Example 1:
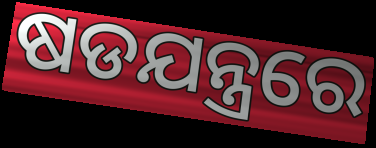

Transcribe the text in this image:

ଷଡଯନ୍ତ୍ରରେ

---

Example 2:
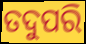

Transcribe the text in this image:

ତଦୁପରି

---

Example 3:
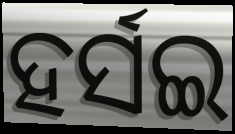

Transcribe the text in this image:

ହର୍ସଇ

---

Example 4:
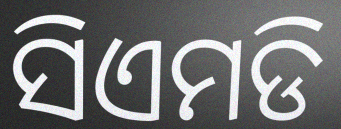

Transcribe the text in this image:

ସିଏମଡି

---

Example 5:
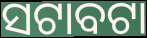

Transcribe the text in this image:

ସଟାବଟା